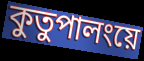
কুতুপালংয়ে